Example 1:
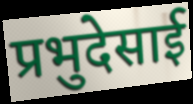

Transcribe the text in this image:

प्रभुदेसाई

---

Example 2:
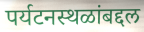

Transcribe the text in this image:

पर्यटनस्थळांबद्दल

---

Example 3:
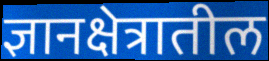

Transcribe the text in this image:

ज्ञानक्षेत्रातील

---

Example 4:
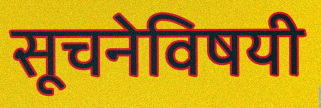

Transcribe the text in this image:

सूचनेविषयी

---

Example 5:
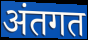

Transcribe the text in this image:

अंतगत